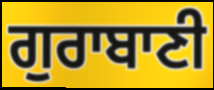
ਗੁਰਾਬਾਣੀ